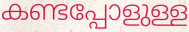
കണ്ടപ്പോളുള്ള